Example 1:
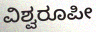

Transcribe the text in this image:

ವಿಶ್ವರೂಪೀ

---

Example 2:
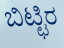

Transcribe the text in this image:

ಬಿಟ್ಟಿರ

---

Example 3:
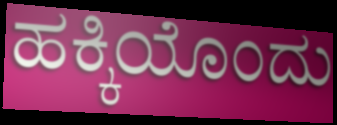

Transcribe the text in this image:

ಹಕ್ಕಿಯೊಂದು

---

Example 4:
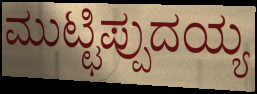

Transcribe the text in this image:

ಮುಟ್ಟಿಪ್ಪುದಯ್ಯ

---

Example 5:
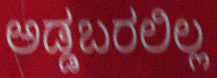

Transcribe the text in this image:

ಅಡ್ಡಬರಲಿಲ್ಲ